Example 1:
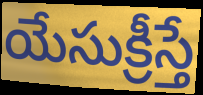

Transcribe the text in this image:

యేసుక్రీస్తే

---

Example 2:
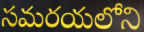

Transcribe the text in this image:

సమరయలోని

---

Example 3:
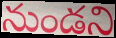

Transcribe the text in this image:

నుండని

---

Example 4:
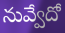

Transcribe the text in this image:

నువ్వేదో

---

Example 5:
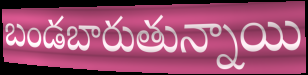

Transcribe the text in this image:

బండబారుతున్నాయి